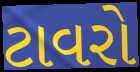
ટાવરો